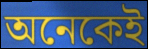
অনেকেই